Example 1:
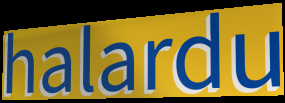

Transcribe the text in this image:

halardu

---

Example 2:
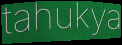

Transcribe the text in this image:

tahukya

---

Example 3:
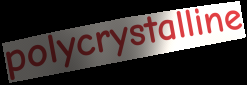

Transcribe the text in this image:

polycrystalline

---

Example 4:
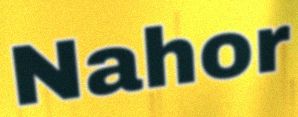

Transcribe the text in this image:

Nahor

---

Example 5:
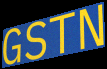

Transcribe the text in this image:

GSTN